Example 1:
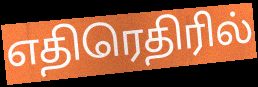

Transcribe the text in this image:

எதிரெதிரில்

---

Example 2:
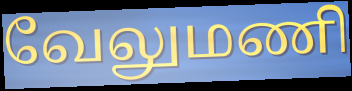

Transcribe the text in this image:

வேலுமணி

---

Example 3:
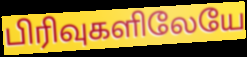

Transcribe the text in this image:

பிரிவுகளிலேயே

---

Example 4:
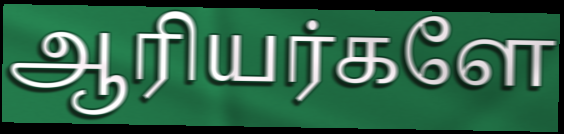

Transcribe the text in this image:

ஆரியர்களே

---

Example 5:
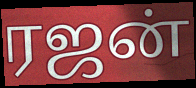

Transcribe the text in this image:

ரஜன்